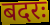
बदरः